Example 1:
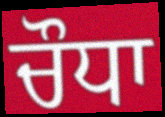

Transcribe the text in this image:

ਚੌਧਾ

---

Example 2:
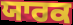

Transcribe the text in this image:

ਯਾਰਕ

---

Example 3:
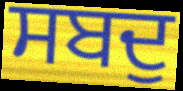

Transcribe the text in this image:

ਸਬਦੁ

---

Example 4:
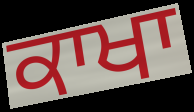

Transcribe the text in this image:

ਕਾਖਾ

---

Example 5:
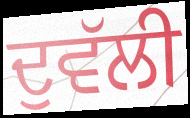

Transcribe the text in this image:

ਦੁਵੱਲੀ